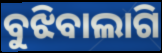
ବୁଝିବାଲାଗି